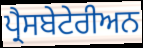
ਪ੍ਰੈਸਬੇਟੇਰੀਅਨ